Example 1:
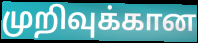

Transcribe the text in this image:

முறிவுக்கான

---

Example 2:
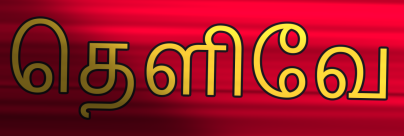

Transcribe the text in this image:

தெளிவே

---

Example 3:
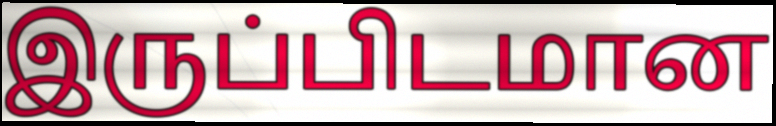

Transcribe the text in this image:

இருப்பிடமான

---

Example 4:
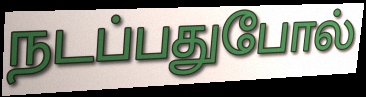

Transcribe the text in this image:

நடப்பதுபோல்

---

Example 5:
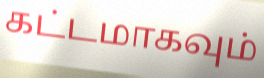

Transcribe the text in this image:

கட்டமாகவும்